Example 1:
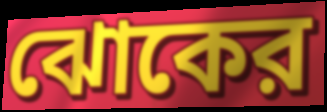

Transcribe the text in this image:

ঝোকের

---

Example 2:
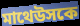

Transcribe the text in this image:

মাথেউসকে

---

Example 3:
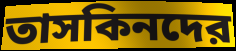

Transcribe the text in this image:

তাসকিনদের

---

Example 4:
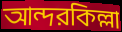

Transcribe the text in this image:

আন্দরকিল্লা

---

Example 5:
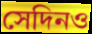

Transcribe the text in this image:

সেদিনও